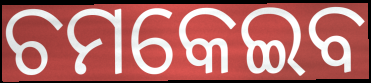
ଚମକେଇବ